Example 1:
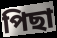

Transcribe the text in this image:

পিছা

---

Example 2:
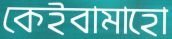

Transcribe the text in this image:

কেইবামাহো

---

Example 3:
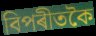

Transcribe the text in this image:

বিপৰীতকৈ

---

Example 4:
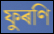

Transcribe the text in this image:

ফুৰণি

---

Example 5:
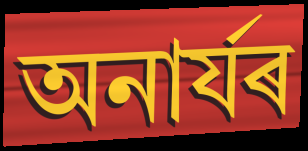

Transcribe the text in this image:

অনাৰ্যৰ